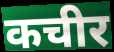
कचीर